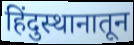
हिंदुस्थानातून